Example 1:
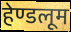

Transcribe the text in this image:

हेण्डलूम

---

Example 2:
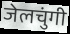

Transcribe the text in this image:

जेलचुंगी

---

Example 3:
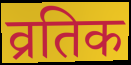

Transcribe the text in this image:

व्रतिक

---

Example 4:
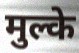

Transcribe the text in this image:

मुल्के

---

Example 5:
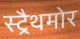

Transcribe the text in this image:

स्ट्रैथमोर